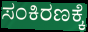
ಸಂಕಿರಣಕ್ಕೆ